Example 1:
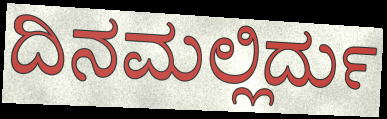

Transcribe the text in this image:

ದಿನಮಲ್ಲಿರ್ದು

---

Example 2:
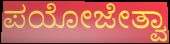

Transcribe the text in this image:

ಪಯೋಜೇತ್ವಾ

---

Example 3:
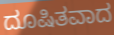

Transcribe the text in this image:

ದೂಷಿತವಾದ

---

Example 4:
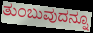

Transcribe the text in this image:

ತುಂಬುವುದನ್ನೂ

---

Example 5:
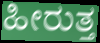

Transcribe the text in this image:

ಹೀರುತ್ತ